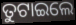
ତୁଟାଇଲେ